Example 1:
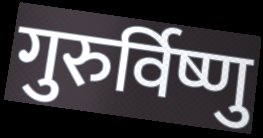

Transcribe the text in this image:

गुरुर्विष्णु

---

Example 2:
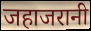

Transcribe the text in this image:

जहाजरानी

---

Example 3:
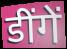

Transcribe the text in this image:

डींगें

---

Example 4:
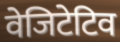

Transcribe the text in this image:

वेजिटेटिव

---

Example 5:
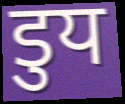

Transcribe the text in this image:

डुय